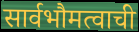
सार्वभौमत्वाची